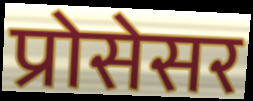
प्रोसेसर